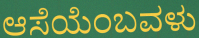
ಆಸೆಯೆಂಬವಳು